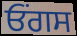
ਓਂਗਸ